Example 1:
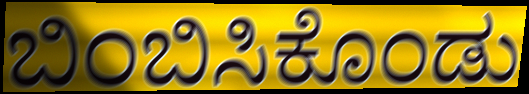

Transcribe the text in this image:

ಬಿಂಬಿಸಿಕೊಂಡು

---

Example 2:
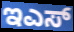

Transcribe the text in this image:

ಇಎಸ್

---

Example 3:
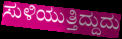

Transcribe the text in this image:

ಸುಳಿಯುತ್ತಿದ್ದುದು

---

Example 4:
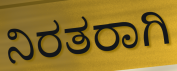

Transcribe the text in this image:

ನಿರತರಾಗಿ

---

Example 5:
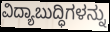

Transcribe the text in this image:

ವಿದ್ಯಾಬುದ್ಧಿಗಳನ್ನು